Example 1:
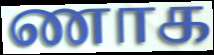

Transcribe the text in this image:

ணாக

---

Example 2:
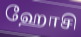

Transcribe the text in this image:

ஹோசி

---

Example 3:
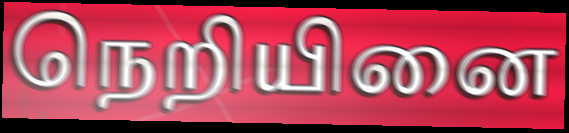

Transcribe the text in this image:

நெறியினை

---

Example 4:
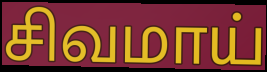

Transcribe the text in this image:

சிவமாய்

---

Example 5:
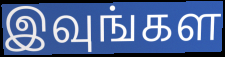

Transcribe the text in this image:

இவுங்கள